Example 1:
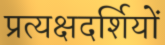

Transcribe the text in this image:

प्रत्यक्षदर्शियों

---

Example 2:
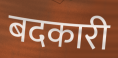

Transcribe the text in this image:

बदकारी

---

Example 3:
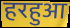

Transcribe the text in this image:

हरहुआ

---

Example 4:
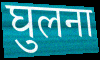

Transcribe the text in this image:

घुलना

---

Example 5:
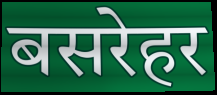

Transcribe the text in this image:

बसरेहर